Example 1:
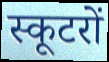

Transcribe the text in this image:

स्कूटरों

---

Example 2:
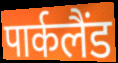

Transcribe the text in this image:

पार्कलैंड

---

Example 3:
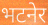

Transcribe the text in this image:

भटनेर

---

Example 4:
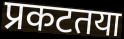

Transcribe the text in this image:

प्रकटतया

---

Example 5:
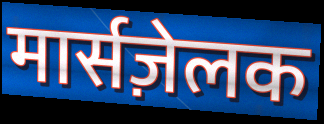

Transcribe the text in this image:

मार्सज़ेलक